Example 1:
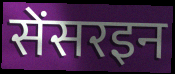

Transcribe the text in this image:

सेंसरइन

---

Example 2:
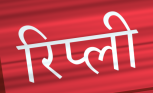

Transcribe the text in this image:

रिप्ली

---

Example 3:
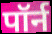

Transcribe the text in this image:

पॉर्न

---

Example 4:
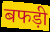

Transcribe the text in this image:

बफड़ी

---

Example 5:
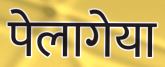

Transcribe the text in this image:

पेलागेया